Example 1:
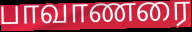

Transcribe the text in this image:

பாவாணரை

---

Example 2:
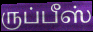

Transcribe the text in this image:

ருப்பீஸ்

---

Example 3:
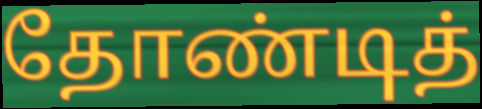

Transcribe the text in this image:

தோண்டித்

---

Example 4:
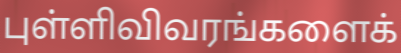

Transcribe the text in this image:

புள்ளிவிவரங்களைக்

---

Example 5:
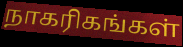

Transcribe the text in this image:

நாகரிகங்கள்